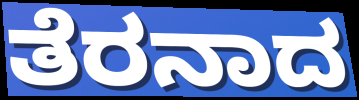
ತೆರನಾದ